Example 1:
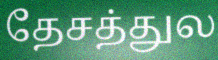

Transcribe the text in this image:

தேசத்துல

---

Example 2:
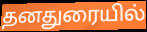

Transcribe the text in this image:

தனதுரையில்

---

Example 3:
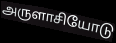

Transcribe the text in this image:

அருளாசியோடு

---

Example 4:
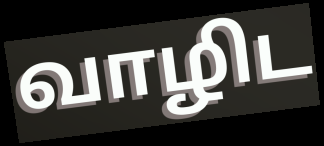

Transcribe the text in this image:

வாழிட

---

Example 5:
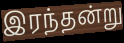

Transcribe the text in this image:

இரந்தன்று